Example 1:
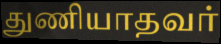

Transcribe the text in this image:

துணியாதவர்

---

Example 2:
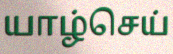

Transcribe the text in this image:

யாழ்செய்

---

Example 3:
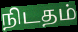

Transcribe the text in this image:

நிடதம்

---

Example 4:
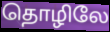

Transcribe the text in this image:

தொழிலே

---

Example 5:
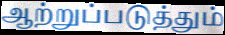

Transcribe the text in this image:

ஆற்றுப்படுத்தும்